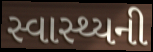
સ્વાસ્થ્યની